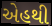
એહથી